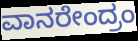
ವಾನರೇಂದ್ರಂ